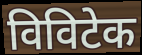
विविटेक